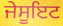
ਜੇਸੂਇਟ